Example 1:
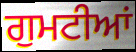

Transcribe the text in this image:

ਗੁਮਟੀਆਂ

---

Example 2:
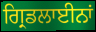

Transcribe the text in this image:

ਗ੍ਰਿਡਲਾਈਨਾਂ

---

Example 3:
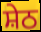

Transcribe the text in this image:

ਸ਼ੇਠ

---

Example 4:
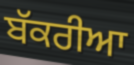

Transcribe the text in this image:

ਬੱਕਰੀਆ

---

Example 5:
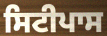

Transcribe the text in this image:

ਸਿਟੀਪਾਸ